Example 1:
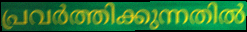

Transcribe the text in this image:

പ്രവർത്തിക്കുന്നതിൽ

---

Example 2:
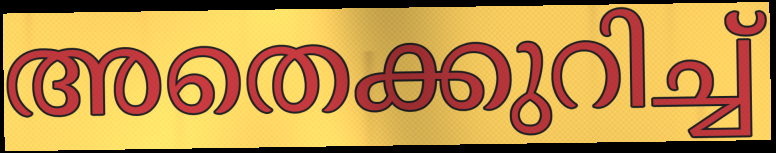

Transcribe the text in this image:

അതെക്കുറിച്ച്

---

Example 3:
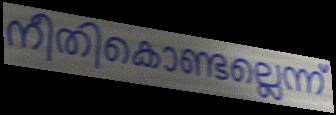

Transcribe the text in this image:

നീതികൊണ്ടല്ലെന്ന്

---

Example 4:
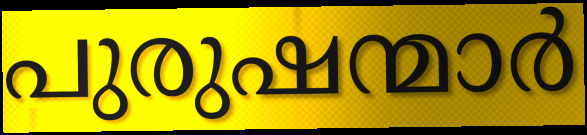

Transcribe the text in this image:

പുരുഷന്മാർ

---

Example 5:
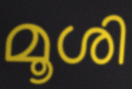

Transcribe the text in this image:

മൂശി